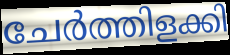
ചേർത്തിളക്കി